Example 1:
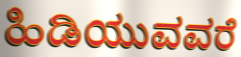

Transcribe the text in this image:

ಹಿಡಿಯುವವರೆ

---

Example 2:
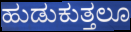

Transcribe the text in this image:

ಹುಡುಕುತ್ತಲೂ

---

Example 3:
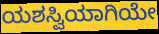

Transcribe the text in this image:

ಯಶಸ್ವಿಯಾಗಿಯೇ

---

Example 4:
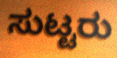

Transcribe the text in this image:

ಸುಟ್ಟರು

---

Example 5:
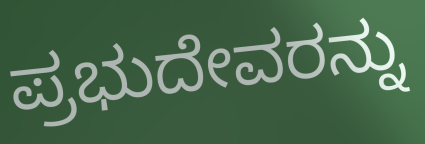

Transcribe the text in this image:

ಪ್ರಭುದೇವರನ್ನು